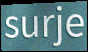
surje